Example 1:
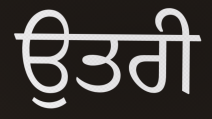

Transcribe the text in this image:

ਉਤਰੀ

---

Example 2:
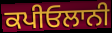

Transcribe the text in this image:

ਕਪੀਓਲਾਨੀ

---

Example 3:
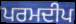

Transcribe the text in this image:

ਪਰਮਦੀਪ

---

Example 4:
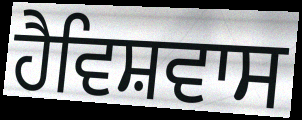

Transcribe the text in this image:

ਹੈਵਿਸ਼ਵਾਸ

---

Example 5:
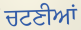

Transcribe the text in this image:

ਚਟਣੀਆਂ